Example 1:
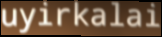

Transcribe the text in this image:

uyirkalai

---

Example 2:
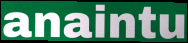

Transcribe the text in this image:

anaintu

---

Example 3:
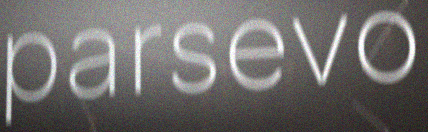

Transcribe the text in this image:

parsevo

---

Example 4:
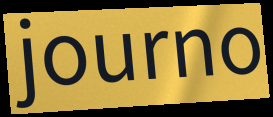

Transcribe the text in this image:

journo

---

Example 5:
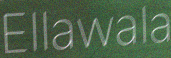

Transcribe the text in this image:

Ellawala